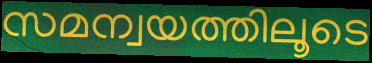
സമന്വയത്തിലൂടെ